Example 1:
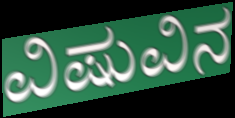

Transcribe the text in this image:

ವಿಷುವಿನ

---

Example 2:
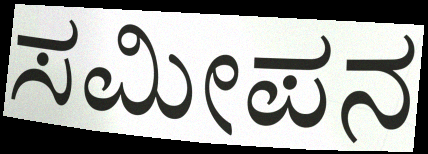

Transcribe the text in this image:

ಸಮೀಪನ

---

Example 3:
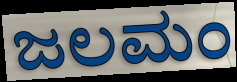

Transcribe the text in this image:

ಜಲಮಂ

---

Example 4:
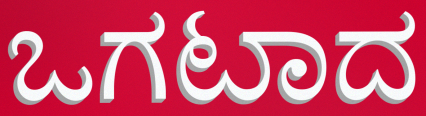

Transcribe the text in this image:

ಒಗಟಾದ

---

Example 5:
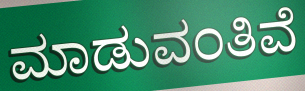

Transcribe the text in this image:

ಮಾಡುವಂತಿವೆ